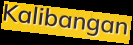
Kalibangan